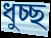
ধুচ্ছ